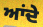
ਆਂਦੇ